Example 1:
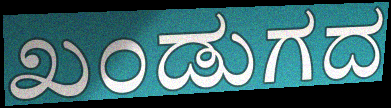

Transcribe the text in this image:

ಖಂಡುಗದ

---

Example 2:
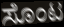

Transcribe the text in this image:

ಸೊಂಟ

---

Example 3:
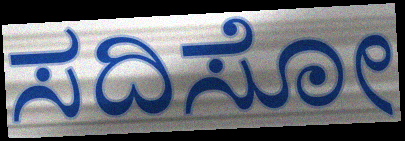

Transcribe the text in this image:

ಸದಿಸೋ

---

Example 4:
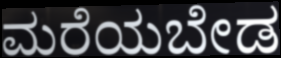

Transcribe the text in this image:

ಮರೆಯಬೇಡ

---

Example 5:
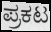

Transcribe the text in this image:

ಪ್ರಕಟ